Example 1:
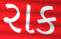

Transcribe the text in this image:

રાક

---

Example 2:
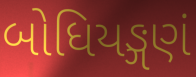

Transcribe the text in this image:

બોધિયઙ્ગણં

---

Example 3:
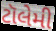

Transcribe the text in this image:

ટૉલેમી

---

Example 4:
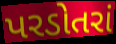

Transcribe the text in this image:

પરડોતરાં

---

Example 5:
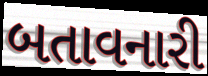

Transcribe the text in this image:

બતાવનારી